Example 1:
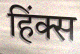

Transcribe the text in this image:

हिंक्स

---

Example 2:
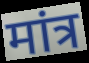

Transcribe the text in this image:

मांत्र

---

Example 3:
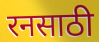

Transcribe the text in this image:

रनसाठी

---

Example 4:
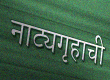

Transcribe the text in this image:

नाट्यगृहाची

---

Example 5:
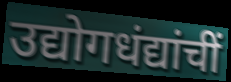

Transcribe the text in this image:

उद्योगधंद्यांचीं